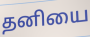
தனியை